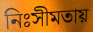
নিঃসীমতায়